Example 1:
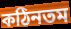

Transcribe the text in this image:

কঠিনতম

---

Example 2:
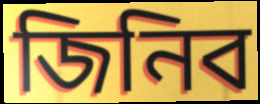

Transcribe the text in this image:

জিনিব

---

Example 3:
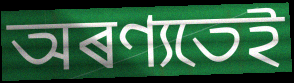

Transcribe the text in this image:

অৰণ্যতেই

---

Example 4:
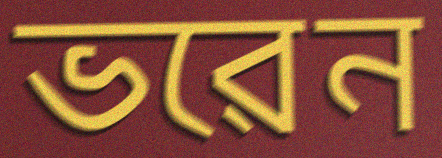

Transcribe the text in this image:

ভৱেন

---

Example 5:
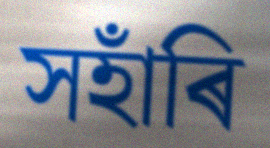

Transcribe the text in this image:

সহাঁৰি